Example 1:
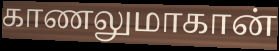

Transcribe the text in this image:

காணலுமாகான்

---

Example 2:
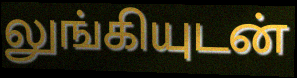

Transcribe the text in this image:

லுங்கியுடன்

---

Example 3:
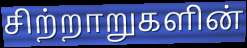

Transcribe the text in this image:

சிற்றாறுகளின்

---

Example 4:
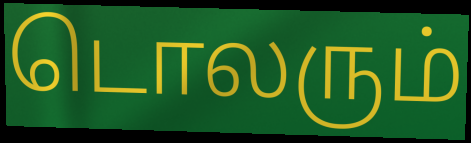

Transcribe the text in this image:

டொலரும்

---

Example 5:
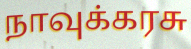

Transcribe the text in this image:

நாவுக்கரசு